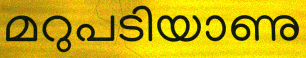
മറുപടിയാണു